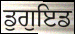
ਡੁਗੁਇਡ